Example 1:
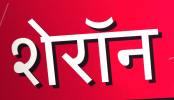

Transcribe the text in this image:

शेरॉन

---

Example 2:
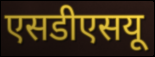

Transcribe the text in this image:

एसडीएसयू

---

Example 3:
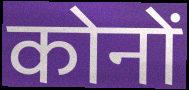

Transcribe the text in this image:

कोनों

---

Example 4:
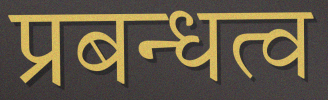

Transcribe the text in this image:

प्रबन्धत्व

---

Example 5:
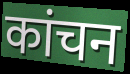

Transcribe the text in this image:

कांचन